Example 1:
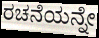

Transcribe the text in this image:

ರಚನೆಯನ್ನೇ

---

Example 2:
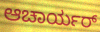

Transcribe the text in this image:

ಆಚಾರ್ಯರ್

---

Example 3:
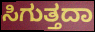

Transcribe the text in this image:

ಸಿಗುತ್ತದಾ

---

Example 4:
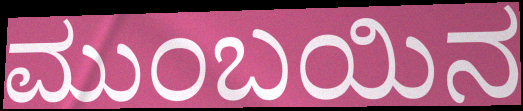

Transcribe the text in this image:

ಮುಂಬಯಿನ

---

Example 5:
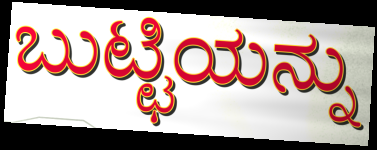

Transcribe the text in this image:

ಬುಟ್ಟಿಯನ್ನು